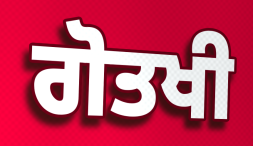
ਗੋਤਖੀ